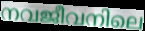
നവജീവനിലെ